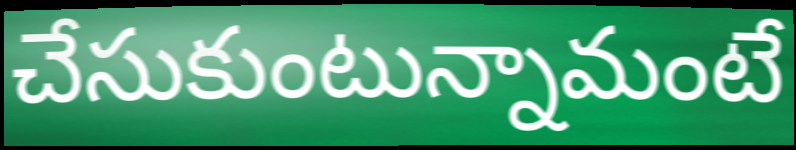
చేసుకుంటున్నామంటే